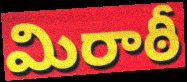
మిరాఠీ